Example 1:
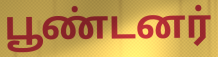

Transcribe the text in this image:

பூண்டனர்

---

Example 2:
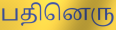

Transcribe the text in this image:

பதினெரு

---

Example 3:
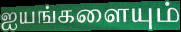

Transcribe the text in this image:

ஐயங்களையும்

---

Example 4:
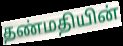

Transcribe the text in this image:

தண்மதியின்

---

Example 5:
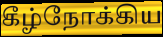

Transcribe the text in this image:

கீழ்நோக்கிய